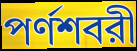
পর্ণশবরী